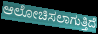
ಆಲೋಚಿಸಲಾಗುತ್ತಿದೆ